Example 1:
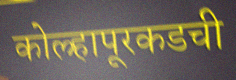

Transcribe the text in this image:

कोल्हापूरकडची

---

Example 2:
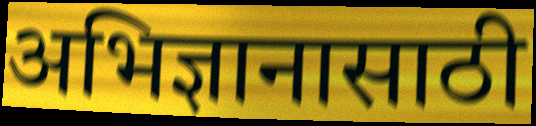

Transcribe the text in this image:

अभिज्ञानासाठी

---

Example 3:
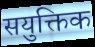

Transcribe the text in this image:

सयुक्तिक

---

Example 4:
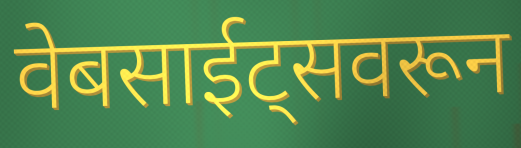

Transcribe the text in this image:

वेबसाईट्सवरून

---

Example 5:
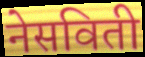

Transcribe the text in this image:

नेसविती